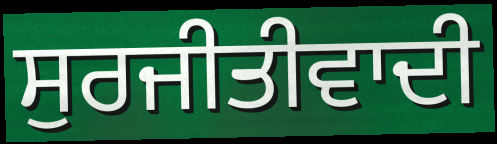
ਸੁਰਜੀਤੀਵਾਦੀ